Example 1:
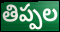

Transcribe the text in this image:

తిప్పల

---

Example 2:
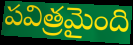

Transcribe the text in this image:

పవిత్రమైంది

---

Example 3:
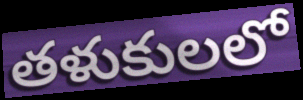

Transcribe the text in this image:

తళుకులలో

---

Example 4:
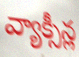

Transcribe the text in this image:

వ్యాక్సీన్ల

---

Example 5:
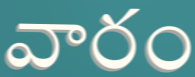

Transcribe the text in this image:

వారం